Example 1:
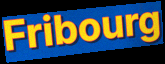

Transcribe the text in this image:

Fribourg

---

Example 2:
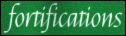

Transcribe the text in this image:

fortifications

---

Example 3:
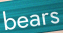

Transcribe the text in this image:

bears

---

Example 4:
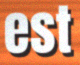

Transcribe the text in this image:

est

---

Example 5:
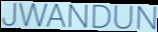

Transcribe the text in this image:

JWANDUN